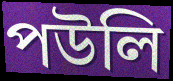
পউলি